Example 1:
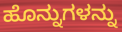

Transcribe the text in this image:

ಹೊನ್ನುಗಳನ್ನು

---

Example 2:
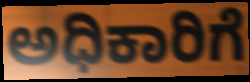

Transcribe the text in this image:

ಅಧಿಕಾರಿಗೆ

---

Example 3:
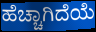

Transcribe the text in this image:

ಹೆಚ್ಚಾಗಿದೆಯೆ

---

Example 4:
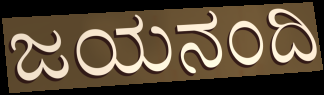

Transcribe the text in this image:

ಜಯನಂದಿ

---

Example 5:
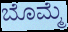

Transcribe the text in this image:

ಬೊಮ್ಮೆ